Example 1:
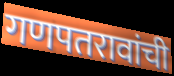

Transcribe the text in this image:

गणपतरावांची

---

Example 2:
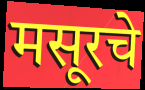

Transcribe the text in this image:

मसूरचे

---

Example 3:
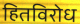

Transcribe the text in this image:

हितविरोध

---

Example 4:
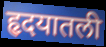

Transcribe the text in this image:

हृदयातली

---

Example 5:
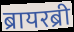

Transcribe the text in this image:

ब्रायरब्री